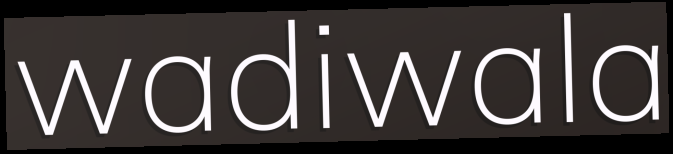
wadiwala